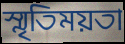
স্মৃতিময়তা